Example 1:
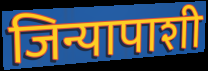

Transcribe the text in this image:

जिन्यापाशी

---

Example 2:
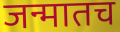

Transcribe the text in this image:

जन्मातच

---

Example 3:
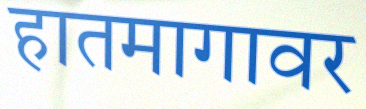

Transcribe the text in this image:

हातमागावर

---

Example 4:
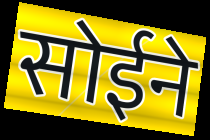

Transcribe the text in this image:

सोईने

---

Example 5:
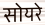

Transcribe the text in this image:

सोयरे